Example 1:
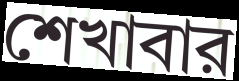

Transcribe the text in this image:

শেখাবার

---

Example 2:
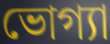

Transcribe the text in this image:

ভোগ্যা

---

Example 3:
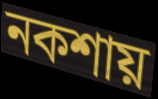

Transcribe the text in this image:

নকশায়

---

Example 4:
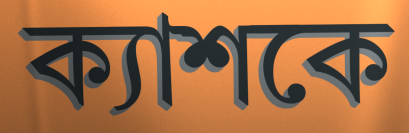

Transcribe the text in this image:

ক্যাশকে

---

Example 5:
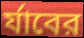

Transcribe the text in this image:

র্যাবের